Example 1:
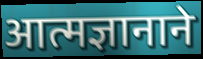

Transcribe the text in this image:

आत्मज्ञानाने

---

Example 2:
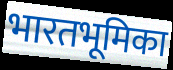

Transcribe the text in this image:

भारतभूमिका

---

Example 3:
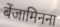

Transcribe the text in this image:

बेंजामिनना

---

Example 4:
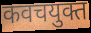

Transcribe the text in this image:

कवचयुक्त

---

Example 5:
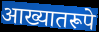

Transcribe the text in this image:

आख्यातरूपे